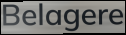
Belagere